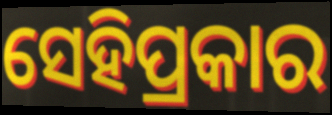
ସେହିପ୍ରକାର